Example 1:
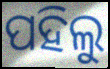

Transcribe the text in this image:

ପହିଲୁ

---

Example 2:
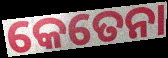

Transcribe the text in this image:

କେତେନା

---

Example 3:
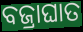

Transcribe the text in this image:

ବଜ୍ରାଘାତ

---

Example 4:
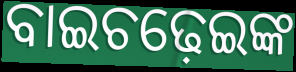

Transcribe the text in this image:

ବାଇଚଢ଼େଇଙ୍କ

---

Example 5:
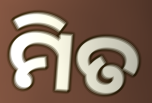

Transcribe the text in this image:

ମିତ